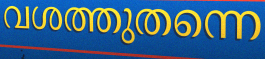
വശത്തുതന്നെ